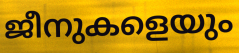
ജീനുകളെയും